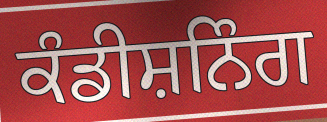
ਕੰਡੀਸ਼ਨਿੰਗ